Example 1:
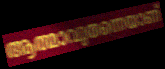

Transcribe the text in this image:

ആത്മാവുതന്നെയാണ്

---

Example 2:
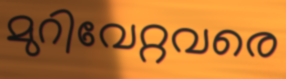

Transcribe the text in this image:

മുറിവേറ്റവരെ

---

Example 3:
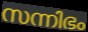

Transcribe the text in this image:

സന്നിഭം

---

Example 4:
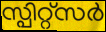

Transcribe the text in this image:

സ്പിറ്റ്സർ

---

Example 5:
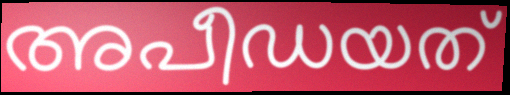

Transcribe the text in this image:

അപീഡയത്